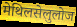
मेथिलसेलुलोज